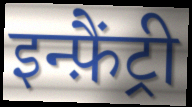
इन्फ़ैंट्री